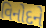
વિનોદને